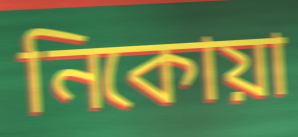
নিকোয়া